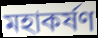
মহাকৰ্ষণ